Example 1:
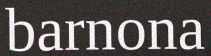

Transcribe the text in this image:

barnona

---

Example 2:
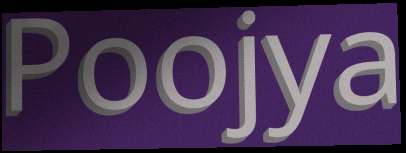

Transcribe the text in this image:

Poojya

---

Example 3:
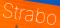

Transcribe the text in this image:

Strabo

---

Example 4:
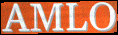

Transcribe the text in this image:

AMLO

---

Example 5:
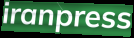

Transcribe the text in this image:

iranpress